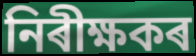
নিৰীক্ষকৰ